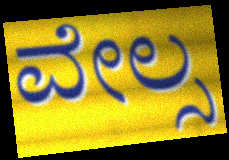
ವೇಲ್ಸ